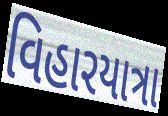
વિહારયાત્રા